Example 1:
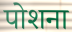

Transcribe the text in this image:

पोशना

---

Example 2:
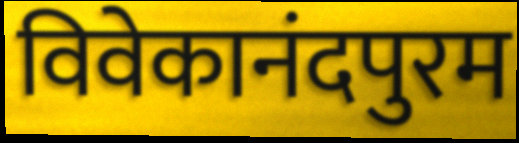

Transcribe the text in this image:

विवेकानंदपुरम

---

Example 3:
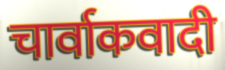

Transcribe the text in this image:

चार्वाकवादी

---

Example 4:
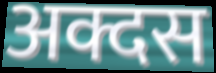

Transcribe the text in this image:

अक्दस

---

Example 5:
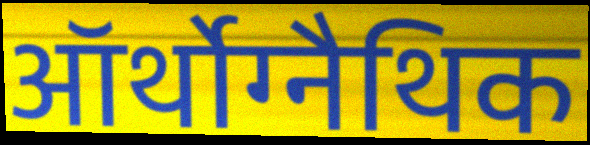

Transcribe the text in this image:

ऑर्थोग्नैथिक